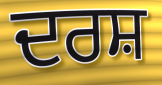
ਦਰਸ਼